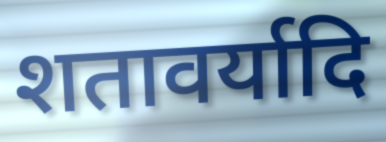
शतावर्यादि